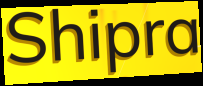
Shipra